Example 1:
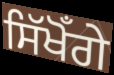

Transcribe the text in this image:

ਸਿੱਖੋਁਗੇ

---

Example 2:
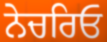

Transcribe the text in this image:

ਨੇਚਰਿਓ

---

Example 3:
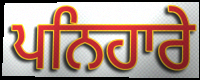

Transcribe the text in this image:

ਪਨਿਹਾਰੇ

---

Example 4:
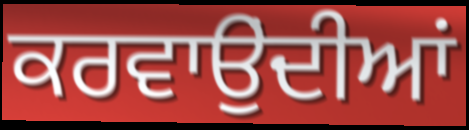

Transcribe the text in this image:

ਕਰਵਾਉੁਂਦੀਆਂ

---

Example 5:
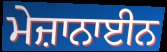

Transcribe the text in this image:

ਮੇਜ਼ਾਨਾਈਨ